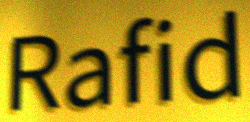
Rafid